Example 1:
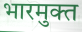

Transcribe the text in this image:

भारमुक्त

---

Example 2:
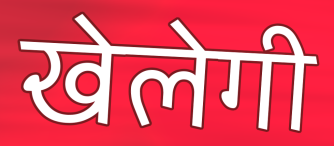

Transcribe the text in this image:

खेलेगी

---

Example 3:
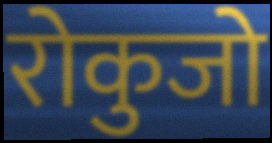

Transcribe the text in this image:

रोकुजो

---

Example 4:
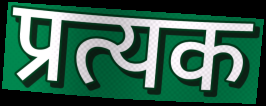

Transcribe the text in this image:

प्रत्यक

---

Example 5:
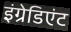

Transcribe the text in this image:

इंग्रेडिएंट